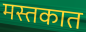
मस्तकात